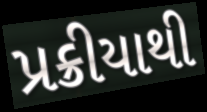
પ્રક્રીયાથી